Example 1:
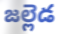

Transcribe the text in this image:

జల్లెడ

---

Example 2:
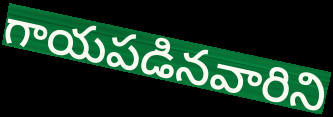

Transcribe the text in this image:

గాయపడినవారిని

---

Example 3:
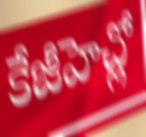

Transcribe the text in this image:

కేజీహెచ్లో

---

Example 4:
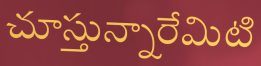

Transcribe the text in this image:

చూస్తున్నారేమిటి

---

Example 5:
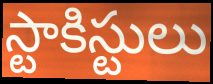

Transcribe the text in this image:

స్టాకిస్టులు